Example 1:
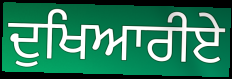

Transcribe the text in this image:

ਦੁਖਿਆਰੀਏ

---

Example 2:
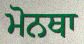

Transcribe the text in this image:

ਮੋਨਥਾ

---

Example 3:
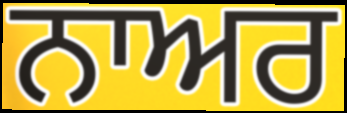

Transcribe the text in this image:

ਨਾਅਰ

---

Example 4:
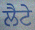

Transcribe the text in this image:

ਲੈਟੇ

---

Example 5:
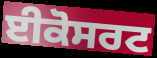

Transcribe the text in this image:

ਈਕੋਸਰਟ